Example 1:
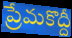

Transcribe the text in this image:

ప్రేమకొద్దీ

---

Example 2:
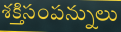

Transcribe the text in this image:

శక్తిసంపన్నులు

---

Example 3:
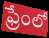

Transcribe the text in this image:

ఫ్రేంలో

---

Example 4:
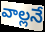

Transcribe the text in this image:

వాల్లనే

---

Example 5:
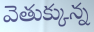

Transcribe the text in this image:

వెతుక్కున్న